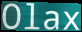
Olax